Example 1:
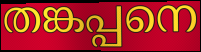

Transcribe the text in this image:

തങ്കപ്പനെ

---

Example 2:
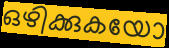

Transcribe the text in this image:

ഒഴിക്കുകയോ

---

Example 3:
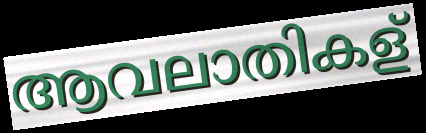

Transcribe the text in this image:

ആവലാതികള്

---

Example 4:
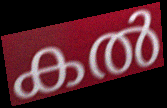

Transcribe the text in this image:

കൽ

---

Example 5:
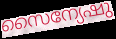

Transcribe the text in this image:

സൈന്യേഷു